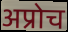
अप्रोच